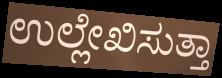
ಉಲ್ಲೇಖಿಸುತ್ತಾ